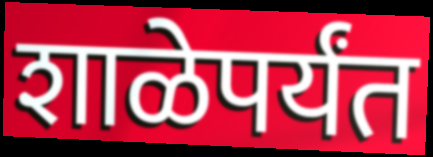
शाळेपर्यंत